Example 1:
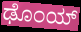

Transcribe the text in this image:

ಢೊಂಯ್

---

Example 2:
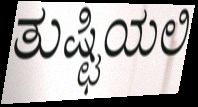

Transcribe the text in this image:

ತುಷ್ಟಿಯಲಿ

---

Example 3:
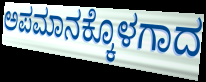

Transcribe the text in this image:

ಅಪಮಾನಕ್ಕೊಳಗಾದ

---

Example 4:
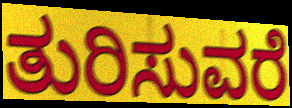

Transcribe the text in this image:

ತುರಿಸುವರೆ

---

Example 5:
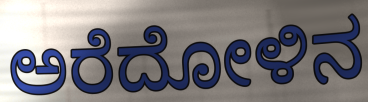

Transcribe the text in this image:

ಅರೆದೋಳಿನ